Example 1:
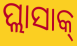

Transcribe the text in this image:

ପ୍ଲାସାକ୍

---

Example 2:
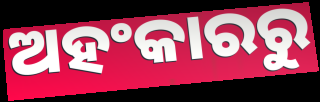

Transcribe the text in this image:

ଅହଂକାରରୁ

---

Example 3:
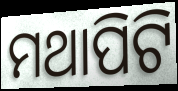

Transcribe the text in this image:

ମଥାପିଟି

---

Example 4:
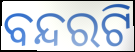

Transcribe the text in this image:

ବନ୍ଦରଟି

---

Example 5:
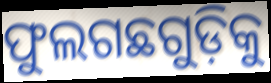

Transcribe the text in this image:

ଫୁଲଗଛଗୁଡ଼ିକୁ